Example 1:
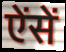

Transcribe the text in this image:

ऐंसें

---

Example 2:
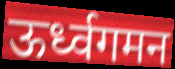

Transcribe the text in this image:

ऊर्ध्वगमन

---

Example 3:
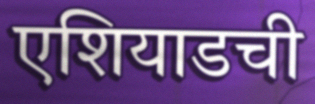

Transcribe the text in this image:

एशियाडची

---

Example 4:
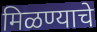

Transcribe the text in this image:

मिळण्याचे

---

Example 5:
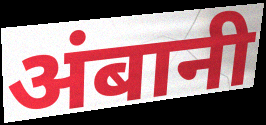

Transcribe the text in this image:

अंबानी